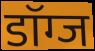
डॉग्ज